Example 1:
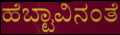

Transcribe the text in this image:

ಹೆಬ್ಟಾವಿನಂತೆ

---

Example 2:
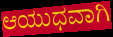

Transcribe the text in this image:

ಆಯುಧವಾಗಿ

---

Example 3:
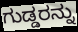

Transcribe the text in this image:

ಗುಡ್ಡರನ್ನು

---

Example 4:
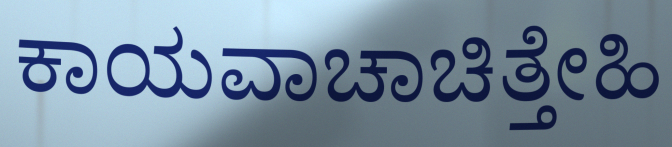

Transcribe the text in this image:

ಕಾಯವಾಚಾಚಿತ್ತೇಹಿ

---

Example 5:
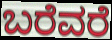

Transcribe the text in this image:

ಬರೆವರೆ